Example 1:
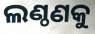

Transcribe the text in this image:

ଲଣ୍ଠଣକୁ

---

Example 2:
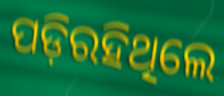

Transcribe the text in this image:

ପଡ଼ିରହିଥିଲେ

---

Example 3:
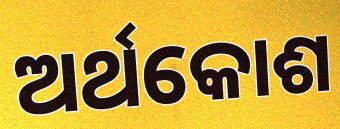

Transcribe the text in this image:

ଅର୍ଥକୋଶ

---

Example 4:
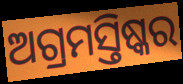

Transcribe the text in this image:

ଅଗ୍ରମସ୍ତିଷ୍କର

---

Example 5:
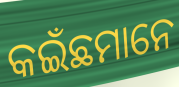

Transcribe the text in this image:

କଇଁଛମାନେ